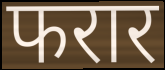
फरार